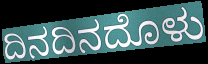
ದಿನದಿನದೊಳು